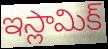
ఇస్లామిక్